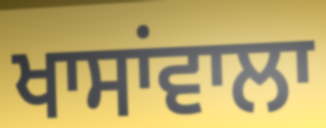
ਖਾਸਾਂਵਾਲਾ